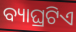
ବ୍ୟାଘ୍ରଟିଏ